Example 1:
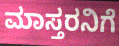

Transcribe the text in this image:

ಮಾಸ್ತರನಿಗೆ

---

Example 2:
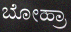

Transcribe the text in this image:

ಬೋಹ್ರಾ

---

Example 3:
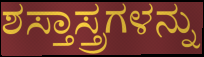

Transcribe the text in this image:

ಶಸ್ತಾಸ್ತ್ರಗಳನ್ನು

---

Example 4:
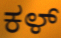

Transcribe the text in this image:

ಕಳ್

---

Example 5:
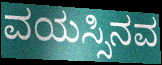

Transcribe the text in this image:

ವಯಸ್ಸಿನವ